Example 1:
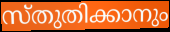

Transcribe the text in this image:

സ്തുതിക്കാനും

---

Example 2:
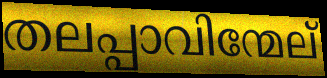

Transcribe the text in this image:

തലപ്പാവിന്മേല്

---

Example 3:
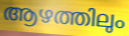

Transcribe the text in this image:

ആഴത്തിലും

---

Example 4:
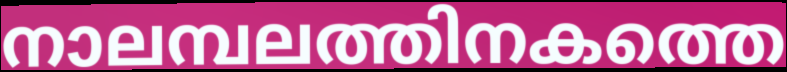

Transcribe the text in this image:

നാലമ്പലത്തിനകത്തെ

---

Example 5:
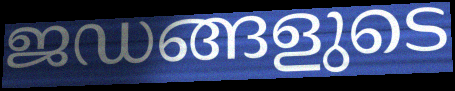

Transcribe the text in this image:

ജഡങ്ങളുടെ